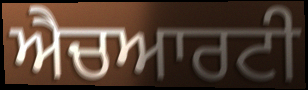
ਐਚਆਰਟੀ